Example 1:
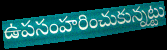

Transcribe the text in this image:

ఉపసంహరించుకున్నట్టు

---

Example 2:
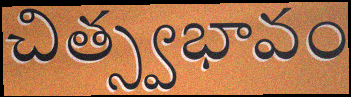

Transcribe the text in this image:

చిత్స్వభావం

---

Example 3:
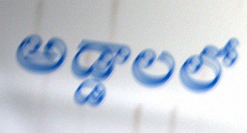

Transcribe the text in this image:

అడ్డాలలో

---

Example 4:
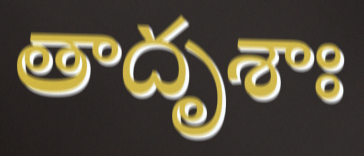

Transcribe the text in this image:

తాదృశాః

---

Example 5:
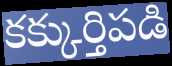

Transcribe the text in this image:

కక్కుర్తిపడి